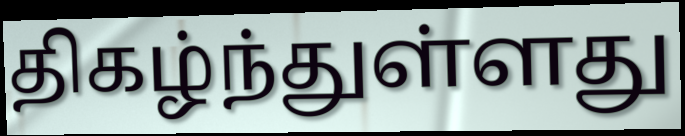
திகழ்ந்துள்ளது